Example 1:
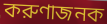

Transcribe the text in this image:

করুণাজনক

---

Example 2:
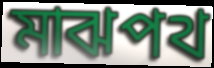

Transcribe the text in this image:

মাঝপথ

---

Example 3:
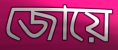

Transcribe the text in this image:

জোয়ে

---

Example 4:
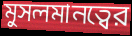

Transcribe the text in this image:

মুসলমানত্বের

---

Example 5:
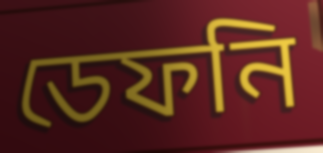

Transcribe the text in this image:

ডেফনি